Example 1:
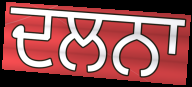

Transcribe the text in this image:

ਦਲਨਾ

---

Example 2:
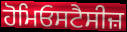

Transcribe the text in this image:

ਹੋਮਿਓਸਟੈਸੀਜ਼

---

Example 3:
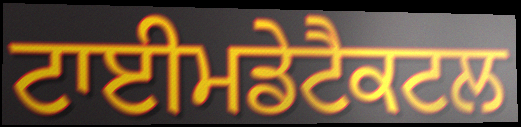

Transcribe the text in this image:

ਟਾਈਮਡੇਟੈਕਟਲ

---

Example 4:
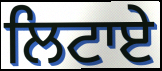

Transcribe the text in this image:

ਲਿਟਾਏ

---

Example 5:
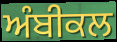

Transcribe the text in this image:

ਅੰਬੀਕਲ